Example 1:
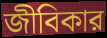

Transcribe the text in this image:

জীবিকার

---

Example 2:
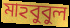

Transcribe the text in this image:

মাহবুবুল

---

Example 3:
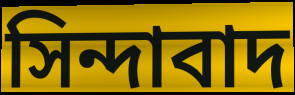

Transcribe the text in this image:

সিন্দাবাদ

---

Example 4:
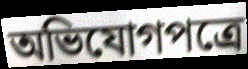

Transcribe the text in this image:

অভিযোগপত্রে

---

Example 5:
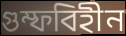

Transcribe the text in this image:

গুম্ফবিহীন